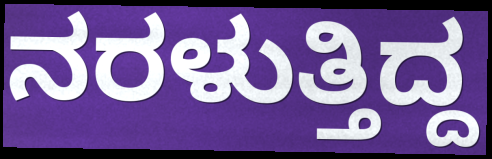
ನರಳುತ್ತಿದ್ದ